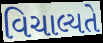
વિચાલ્યતે